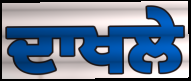
ਦਾਖਲੇ